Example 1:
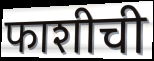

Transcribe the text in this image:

फाशीची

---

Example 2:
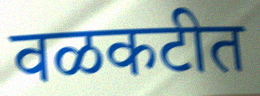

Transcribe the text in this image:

वळकटीत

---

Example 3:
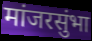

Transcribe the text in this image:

मांजरसुंभा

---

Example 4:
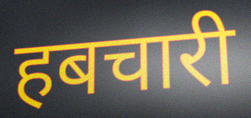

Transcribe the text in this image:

हबचारी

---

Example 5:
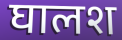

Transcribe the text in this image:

घालश